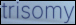
trisomy